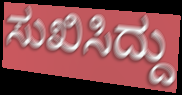
ಸುಖಿಸಿದ್ದು